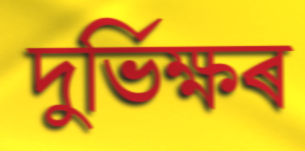
দুৰ্ভিক্ষৰ